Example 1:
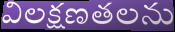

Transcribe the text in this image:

విలక్షణతలను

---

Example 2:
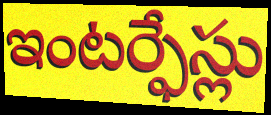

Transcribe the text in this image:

ఇంటర్ఫేస్లు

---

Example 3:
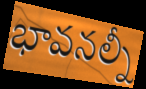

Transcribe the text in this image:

భావనల్నీ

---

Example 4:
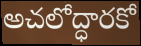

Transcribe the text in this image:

అచలోద్ధారకో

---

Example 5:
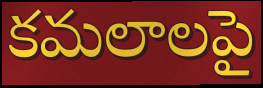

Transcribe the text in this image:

కమలాలపై